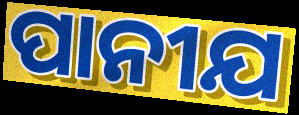
ପାନୀଯ